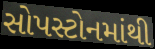
સોપસ્ટોનમાંથી